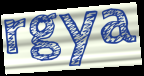
rgya